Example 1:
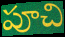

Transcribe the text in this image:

పూచి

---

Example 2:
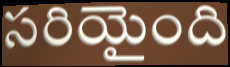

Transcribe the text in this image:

సరియైంది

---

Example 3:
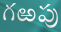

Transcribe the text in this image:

గఱపు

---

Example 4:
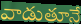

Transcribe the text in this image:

వాడుతూనే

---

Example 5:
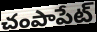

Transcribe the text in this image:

చంపాపేట్